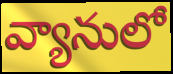
వ్యానులో